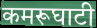
कमरूघाटी